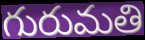
గురుమతి